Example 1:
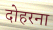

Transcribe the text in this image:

दोहरना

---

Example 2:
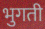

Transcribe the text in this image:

भुगती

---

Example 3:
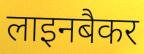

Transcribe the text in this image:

लाइनबैकर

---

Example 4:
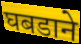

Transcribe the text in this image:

घबडाने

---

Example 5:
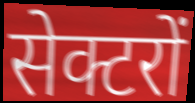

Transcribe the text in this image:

सेक्टरों